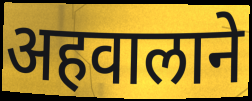
अहवालाने